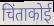
चिंताकोई